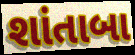
શાંતાબા